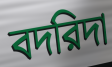
বদরিদা